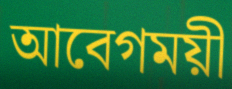
আবেগময়ী